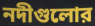
নদীগুলোর